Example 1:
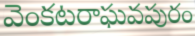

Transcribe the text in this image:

వెంకటరాఘవపురం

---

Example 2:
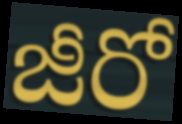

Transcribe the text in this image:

జీరో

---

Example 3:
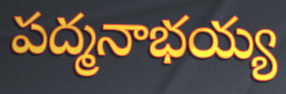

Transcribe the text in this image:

పద్మనాభయ్య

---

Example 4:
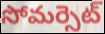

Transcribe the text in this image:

సోమర్సెట్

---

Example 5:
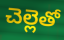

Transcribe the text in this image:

చెల్లెతో